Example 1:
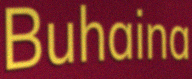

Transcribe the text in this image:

Buhaina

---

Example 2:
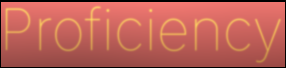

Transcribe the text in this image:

Proficiency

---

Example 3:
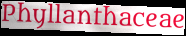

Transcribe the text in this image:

Phyllanthaceae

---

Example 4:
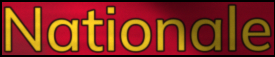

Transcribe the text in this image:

Nationale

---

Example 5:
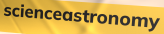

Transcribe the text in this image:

scienceastronomy